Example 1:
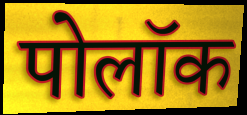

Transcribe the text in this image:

पोलॉक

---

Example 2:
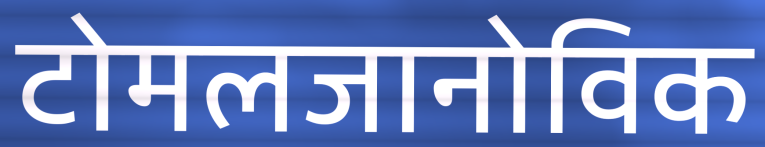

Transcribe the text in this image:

टोमलजानोविक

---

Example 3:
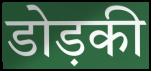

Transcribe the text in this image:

डोड़की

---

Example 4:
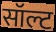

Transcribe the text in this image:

सॉल्‍ट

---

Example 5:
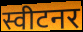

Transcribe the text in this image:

स्वीटनर